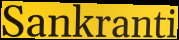
Sankranti